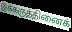
இக்கருத்தினைக்